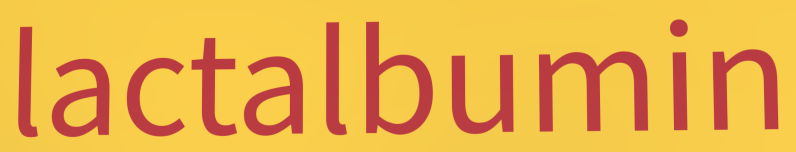
lactalbumin